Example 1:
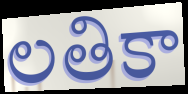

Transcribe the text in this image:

లతికా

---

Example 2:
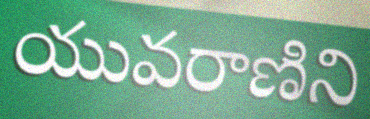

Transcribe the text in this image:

యువరాణిని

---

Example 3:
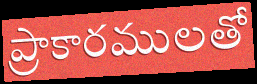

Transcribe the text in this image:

ప్రాకారములతో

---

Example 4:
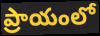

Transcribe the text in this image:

ప్రాయంలో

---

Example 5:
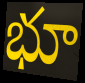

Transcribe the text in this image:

భూ